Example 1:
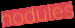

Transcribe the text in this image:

nodules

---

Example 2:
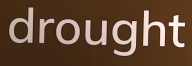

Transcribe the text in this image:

drought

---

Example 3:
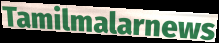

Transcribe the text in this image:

Tamilmalarnews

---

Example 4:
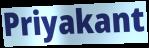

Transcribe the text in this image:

Priyakant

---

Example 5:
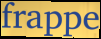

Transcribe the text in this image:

frappe